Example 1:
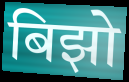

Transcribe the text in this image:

बिझो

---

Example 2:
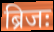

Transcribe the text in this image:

ब्रिजः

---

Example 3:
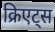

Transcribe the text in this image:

क्रिएट्स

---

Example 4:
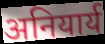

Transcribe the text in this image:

अनियार्य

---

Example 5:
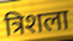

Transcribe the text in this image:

त्रिशला